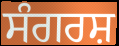
ਸੰਗਰਸ਼